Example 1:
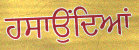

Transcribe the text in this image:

ਹਸਾਉਂਦਿਆਂ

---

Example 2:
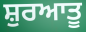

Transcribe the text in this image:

ਸ਼ੁਰਆਤੂ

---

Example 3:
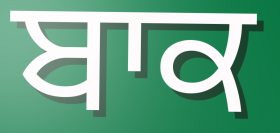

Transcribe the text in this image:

ਬਾਕ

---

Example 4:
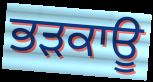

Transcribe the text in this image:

ਭੜਕਾਊ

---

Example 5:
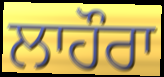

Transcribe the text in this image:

ਲਾਹੌਰਾ